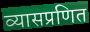
व्यासप्रणित